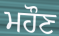
ਮਹੌਣ